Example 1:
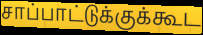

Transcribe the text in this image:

சாப்பாட்டுக்குக்கூட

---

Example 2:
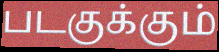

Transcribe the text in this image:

படகுக்கும்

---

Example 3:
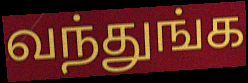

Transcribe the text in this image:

வந்துங்க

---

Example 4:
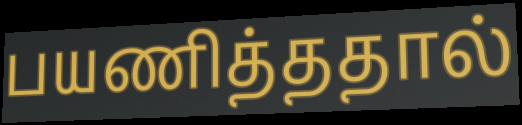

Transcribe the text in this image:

பயணித்ததால்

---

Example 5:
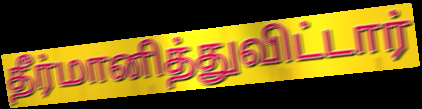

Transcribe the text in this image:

தீர்மானித்துவிட்டார்